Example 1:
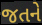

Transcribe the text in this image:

જતને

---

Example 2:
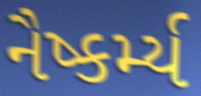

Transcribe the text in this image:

નૈષ્કર્મ્ય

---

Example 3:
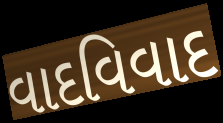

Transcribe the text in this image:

વાદવિવાદ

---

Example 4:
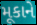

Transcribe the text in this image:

મૂકાને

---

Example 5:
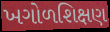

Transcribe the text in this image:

ખગોળશિક્ષણ